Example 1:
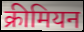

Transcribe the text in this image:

क्रीमियन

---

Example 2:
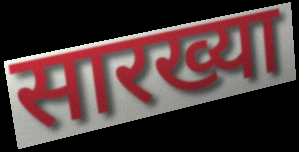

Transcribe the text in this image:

सारख्या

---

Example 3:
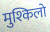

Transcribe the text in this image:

मुश्किलो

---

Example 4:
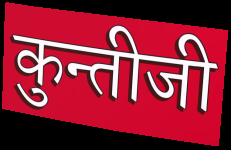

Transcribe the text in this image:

कुन्तीजी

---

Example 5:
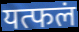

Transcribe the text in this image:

यत्फलं